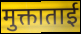
मुक्ताताई